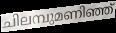
ചിലമ്പുമണിഞ്ഞ്